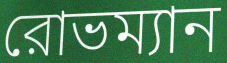
রোভম্যান